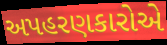
અપહરણકારોએ